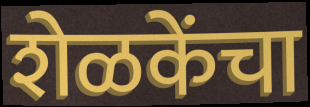
शेळकेंचा